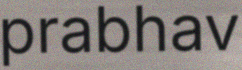
prabhav